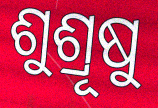
ଶୁଶ୍ରୂଷୁ